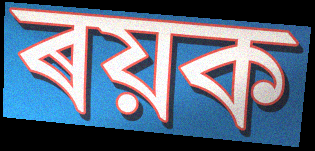
ৰয়ক